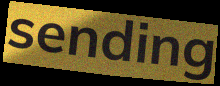
sending